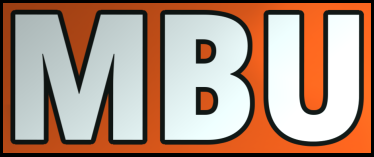
MBU